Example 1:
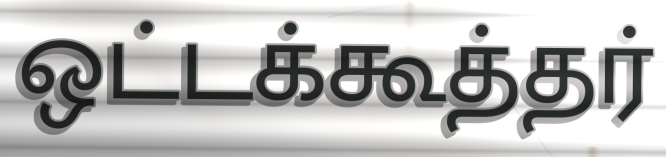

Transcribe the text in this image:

ஒட்டக்கூத்தர்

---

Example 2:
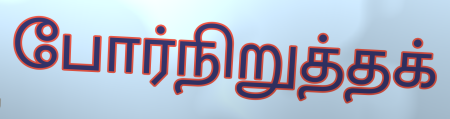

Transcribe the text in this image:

போர்நிறுத்தக்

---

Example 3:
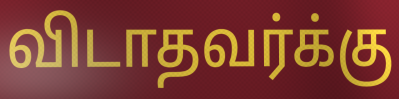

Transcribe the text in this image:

விடாதவர்க்கு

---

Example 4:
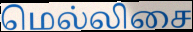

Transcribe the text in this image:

மெல்லிசை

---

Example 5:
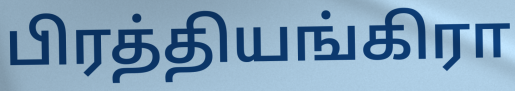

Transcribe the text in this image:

பிரத்தியங்கிரா